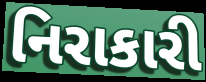
નિરાકારી